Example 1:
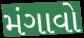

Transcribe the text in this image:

મંગાવો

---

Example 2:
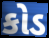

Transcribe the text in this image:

કોડ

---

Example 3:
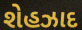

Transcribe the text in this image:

શેહઝાદ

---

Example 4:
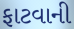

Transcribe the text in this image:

ફાટવાની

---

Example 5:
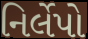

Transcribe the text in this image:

નિર્લેપો